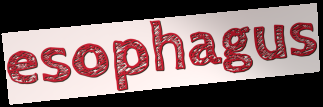
esophagus